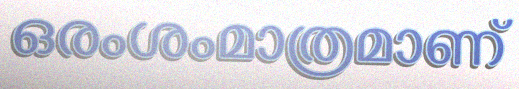
ഒരംശംമാത്രമാണ്